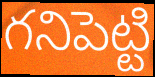
గనిపెట్టి